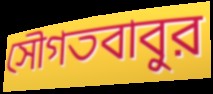
সৌগতবাবুর